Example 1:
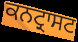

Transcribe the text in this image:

ਕਨਟ੍ਰਾਸਟ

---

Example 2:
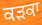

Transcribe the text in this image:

ਕੜਕਾ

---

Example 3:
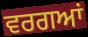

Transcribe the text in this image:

ਵਰਗਆਂ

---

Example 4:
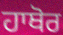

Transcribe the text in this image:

ਹਾਥੋਰ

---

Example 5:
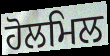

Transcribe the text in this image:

ਹੋਲਮਿਲ